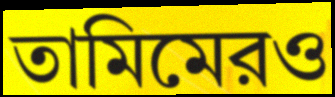
তামিমেরও